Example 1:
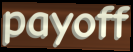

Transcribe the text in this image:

payoff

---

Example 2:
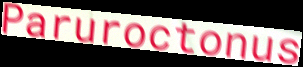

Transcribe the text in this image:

Paruroctonus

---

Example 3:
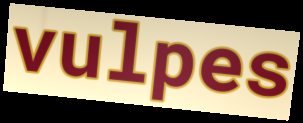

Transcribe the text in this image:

vulpes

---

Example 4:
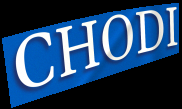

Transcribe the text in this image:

CHODI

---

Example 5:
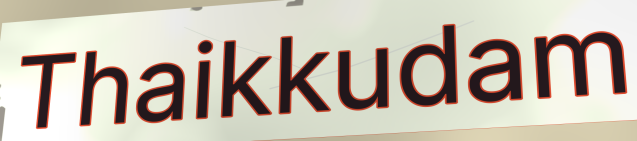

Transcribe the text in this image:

Thaikkudam